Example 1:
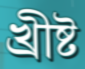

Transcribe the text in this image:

খ্ৰীষ্ট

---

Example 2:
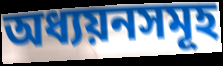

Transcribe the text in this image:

অধ্যয়নসমূহ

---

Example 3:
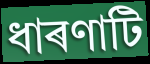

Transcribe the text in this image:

ধাৰণাটি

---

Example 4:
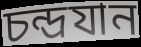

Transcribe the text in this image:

চন্দ্ৰযান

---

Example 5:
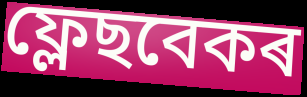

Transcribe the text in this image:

ফ্লেছবেকৰ